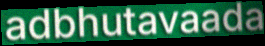
adbhutavaada